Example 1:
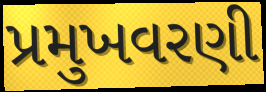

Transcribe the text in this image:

પ્રમુખવરણી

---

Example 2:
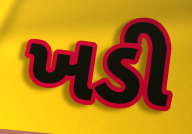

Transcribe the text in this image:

ખડી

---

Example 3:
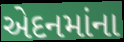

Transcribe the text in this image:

એદનમાંના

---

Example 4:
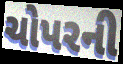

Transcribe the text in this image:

ચોપરની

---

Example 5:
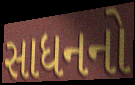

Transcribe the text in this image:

સાધનનો